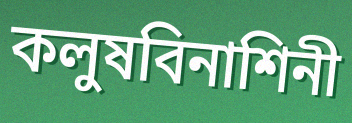
কলুষবিনাশিনী